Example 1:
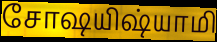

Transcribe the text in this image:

சோஷயிஷ்யாமி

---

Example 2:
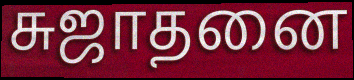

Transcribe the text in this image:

சுஜாதனை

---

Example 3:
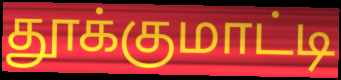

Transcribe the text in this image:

தூக்குமாட்டி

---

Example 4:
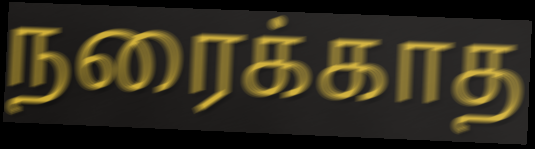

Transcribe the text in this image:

நரைக்காத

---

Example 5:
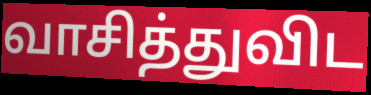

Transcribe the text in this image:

வாசித்துவிட